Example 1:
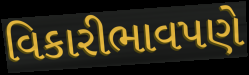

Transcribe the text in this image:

વિકારીભાવપણે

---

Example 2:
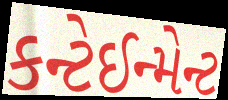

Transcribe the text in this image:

કન્ટેઈન્મેન્ટ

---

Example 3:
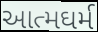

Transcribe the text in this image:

આત્મઘર્મ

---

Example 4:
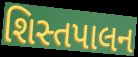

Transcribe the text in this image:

શિસ્તપાલન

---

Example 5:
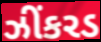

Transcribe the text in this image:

ઝીંકરડ